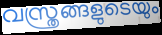
വസ്ത്രങ്ങളുടെയും